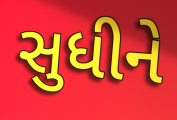
સુધીને